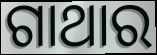
ଗାଥାର